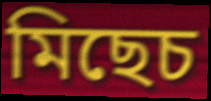
মিছেচ